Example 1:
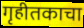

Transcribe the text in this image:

गृहीतकाचा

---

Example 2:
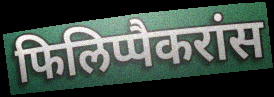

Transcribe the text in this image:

फिलिप्पैकरांस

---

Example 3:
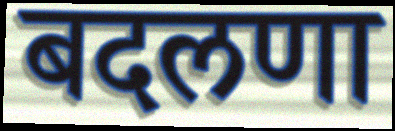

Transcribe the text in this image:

बदलणा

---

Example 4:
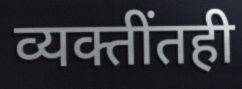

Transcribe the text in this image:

व्यक्तींतही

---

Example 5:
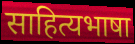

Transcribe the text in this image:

साहित्यभाषा